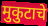
मुकुटाचे